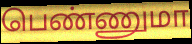
பெண்ணுமா